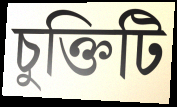
চুক্তিটি